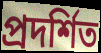
প্রদর্শিত